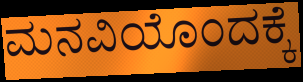
ಮನವಿಯೊಂದಕ್ಕೆ